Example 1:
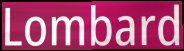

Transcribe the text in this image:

Lombard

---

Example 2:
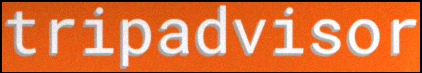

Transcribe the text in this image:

tripadvisor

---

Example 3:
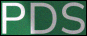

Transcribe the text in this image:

PDS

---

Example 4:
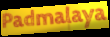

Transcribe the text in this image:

Padmalaya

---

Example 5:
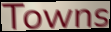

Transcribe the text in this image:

Towns